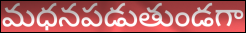
మధనపడుతుండగా